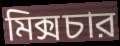
মিক্সচার